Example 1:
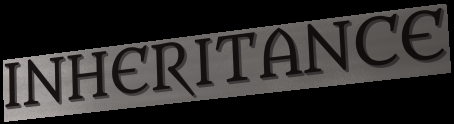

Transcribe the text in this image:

INHERITANCE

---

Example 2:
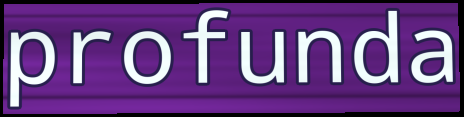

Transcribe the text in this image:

profunda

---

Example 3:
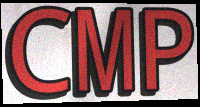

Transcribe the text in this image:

CMP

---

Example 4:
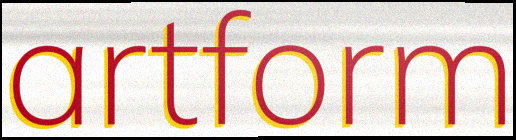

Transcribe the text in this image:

artform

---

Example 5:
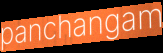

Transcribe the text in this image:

panchangam